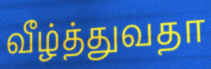
வீழ்த்துவதா